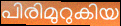
പിരിമുറുകിയ